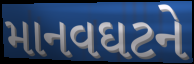
માનવઘટને